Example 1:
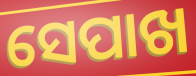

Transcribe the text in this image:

ସେପାଖ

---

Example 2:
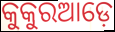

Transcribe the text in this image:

କୁକୁରଆଡ଼େ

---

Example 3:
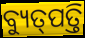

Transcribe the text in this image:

ବ୍ୟୁତ୍‌ପତ୍ତି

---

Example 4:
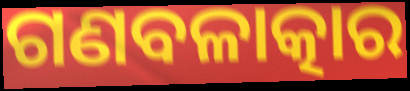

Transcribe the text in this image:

ଗଣବଳାତ୍କାର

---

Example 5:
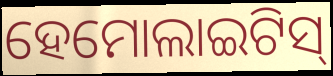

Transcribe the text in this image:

ହେମୋଲାଇଟିସ୍